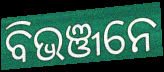
ବିଭଞ୍ଜନେ